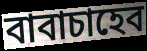
বাবাচাহেব